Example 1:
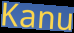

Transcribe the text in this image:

Kanu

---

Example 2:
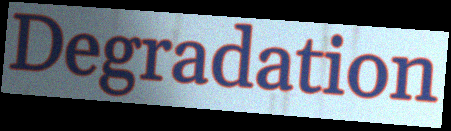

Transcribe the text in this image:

Degradation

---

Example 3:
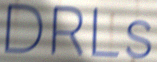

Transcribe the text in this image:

DRLs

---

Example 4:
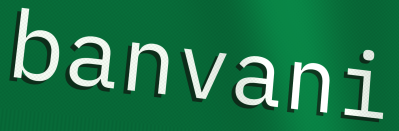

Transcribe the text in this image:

banvani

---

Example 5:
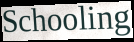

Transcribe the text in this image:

Schooling